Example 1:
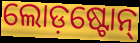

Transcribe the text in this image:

ଲୋଡ଼ଷ୍ଟୋନ୍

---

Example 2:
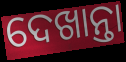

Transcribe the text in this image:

ଦେଖାନ୍ତା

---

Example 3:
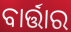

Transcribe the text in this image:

ବାର୍ତ୍ତାର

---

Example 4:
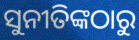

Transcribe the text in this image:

ସୁନୀତିଙ୍କଠାରୁ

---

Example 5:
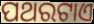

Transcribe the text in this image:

ପଥରଟାଏ